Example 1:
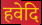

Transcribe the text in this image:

हवेदि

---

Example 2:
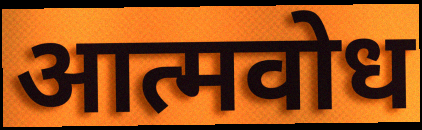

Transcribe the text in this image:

आत्मवोध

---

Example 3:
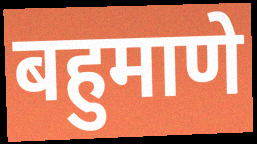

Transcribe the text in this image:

बहुमाणे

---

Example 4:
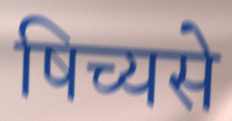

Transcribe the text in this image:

षिच्यसे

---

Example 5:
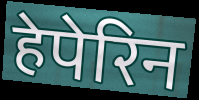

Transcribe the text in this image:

हेपेरिन